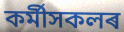
কৰ্মীসকলৰ